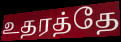
உதரத்தே